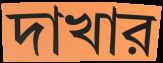
দাখার